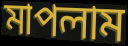
মাপলাম